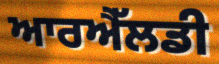
ਆਰਐੱਲਡੀ